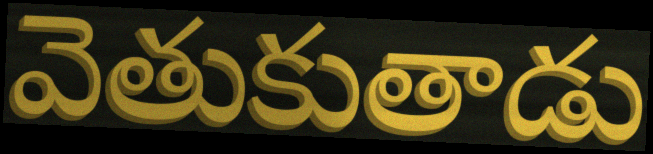
వెతుకుతాడు